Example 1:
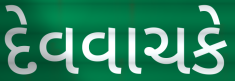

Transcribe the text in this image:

દેવવાચકે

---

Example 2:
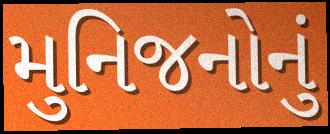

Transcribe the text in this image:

મુનિજનોનું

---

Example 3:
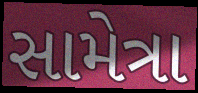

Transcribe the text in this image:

સામેત્રા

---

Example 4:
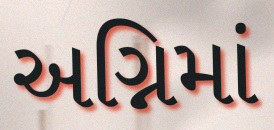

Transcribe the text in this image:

અગ્નિમાં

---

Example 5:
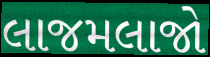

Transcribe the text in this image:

લાજમલાજો